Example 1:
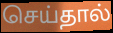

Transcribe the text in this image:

செய்தால்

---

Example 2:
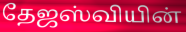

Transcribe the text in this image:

தேஜஸ்வியின்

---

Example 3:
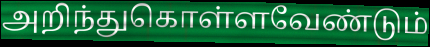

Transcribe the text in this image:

அறிந்துகொள்ளவேண்டும்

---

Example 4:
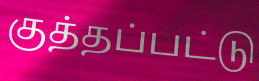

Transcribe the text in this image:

குத்தப்பட்டு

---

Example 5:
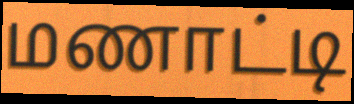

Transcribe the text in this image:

மணாட்டி